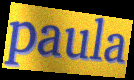
paula